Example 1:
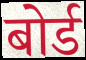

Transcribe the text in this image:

बोर्ड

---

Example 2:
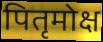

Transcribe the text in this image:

पितृमोक्ष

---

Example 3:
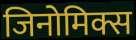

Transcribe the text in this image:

जिनोमिक्स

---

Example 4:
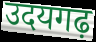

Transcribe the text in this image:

उदयगढ़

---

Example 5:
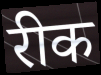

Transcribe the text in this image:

रीक